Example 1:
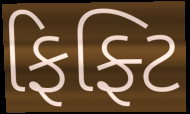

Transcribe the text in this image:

ફિફ્ટિ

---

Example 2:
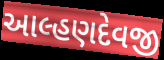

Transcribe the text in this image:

આલ્હણદેવજી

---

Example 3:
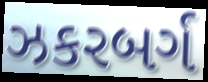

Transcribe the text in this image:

ઝકરબર્ગ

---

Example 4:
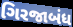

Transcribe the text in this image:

ગિરજાબંધ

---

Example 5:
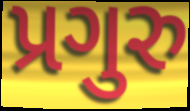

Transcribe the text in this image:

પ્રગુરુ